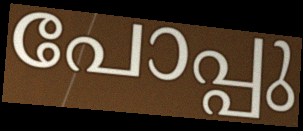
പോപ്പു